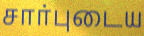
சார்புடைய